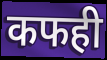
कफही